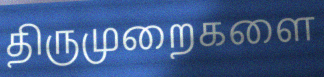
திருமுறைகளை